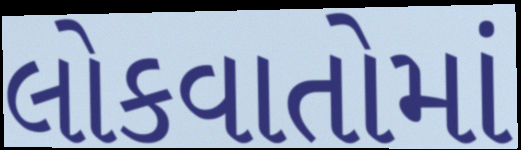
લોકવાતોમાં